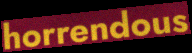
horrendous